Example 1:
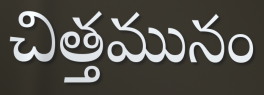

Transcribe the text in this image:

చిత్తమునం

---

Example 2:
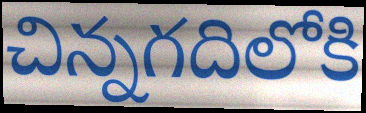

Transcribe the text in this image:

చిన్నగదిలోకి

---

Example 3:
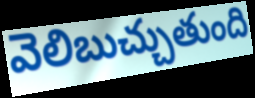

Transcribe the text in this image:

వెలిబుచ్చుతుంది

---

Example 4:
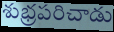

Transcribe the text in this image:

శుభ్రపరిచాడు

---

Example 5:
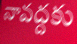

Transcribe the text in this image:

నావద్దకు